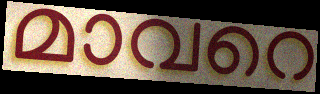
മാവറെ